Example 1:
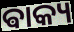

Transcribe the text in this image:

ଵାକ୍ୟ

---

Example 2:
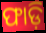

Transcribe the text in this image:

ଫାଡ଼ି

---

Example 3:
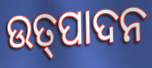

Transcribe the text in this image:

ଉତ୍‌ପାଦନ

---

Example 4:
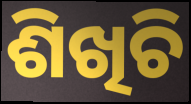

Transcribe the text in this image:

ଶିଖିଚି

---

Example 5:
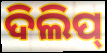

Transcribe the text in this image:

ଦିଲିପ୍